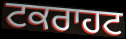
ਟਕਰਾਹਟ